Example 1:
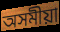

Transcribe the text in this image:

অসমীয়া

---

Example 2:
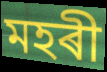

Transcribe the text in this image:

মহৰী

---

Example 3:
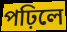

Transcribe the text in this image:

পঢ়িলে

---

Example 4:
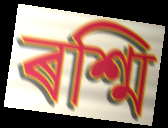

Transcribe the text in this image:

ৰশ্মি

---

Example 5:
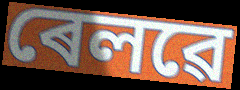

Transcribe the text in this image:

ৰেলৱে